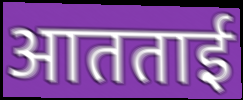
आतताई